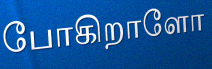
போகிறாளோ